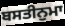
ਬਸਤੀਨੁਮਾ